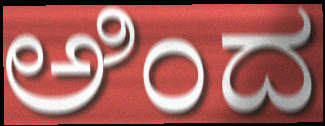
ಅಿಂದ